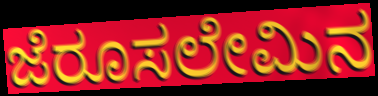
ಜೆರೂಸಲೇಮಿನ